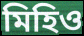
মিহিও